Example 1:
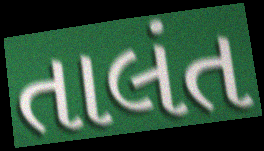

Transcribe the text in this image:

તાલંત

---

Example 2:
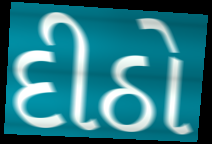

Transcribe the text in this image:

દીઠો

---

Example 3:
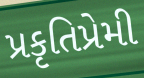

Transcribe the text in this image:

પ્રકૃતિપ્રેમી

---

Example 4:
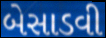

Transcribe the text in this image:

બેસાડવી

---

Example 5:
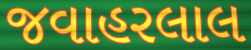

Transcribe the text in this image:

જવાહરલાલ